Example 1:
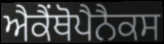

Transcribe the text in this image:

ਐਕੈਂਥੋਪੈਨੈਕਸ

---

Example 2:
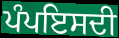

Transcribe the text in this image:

ਪੰਪਇਸਦੀ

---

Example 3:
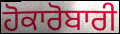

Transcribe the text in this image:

ਹੋਕਾਰੋਬਾਰੀ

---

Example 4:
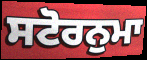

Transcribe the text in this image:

ਸਟੋਰਨੁਮਾ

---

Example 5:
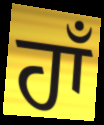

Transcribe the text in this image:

ਹਾਁ